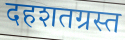
दहशतग्रस्त